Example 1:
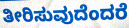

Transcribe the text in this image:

ತೀರಿಸುವುದೆಂದರೆ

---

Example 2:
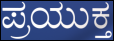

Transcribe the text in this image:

ಪ್ರಯುಕ್ತ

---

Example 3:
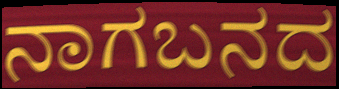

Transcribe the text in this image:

ನಾಗಬನದ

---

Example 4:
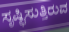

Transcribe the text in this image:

ಸೃಷ್ಟಿಸುತ್ತಿರುವ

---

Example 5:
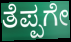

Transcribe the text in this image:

ತೆಪ್ಪಗೇ